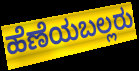
ಹೆಣೆಯಬಲ್ಲರು